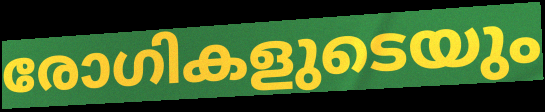
രോഗികളുടെയും